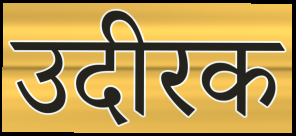
उदीरक